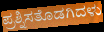
ಪ್ರಶ್ನಿಸತೊಡಗಿದಳು